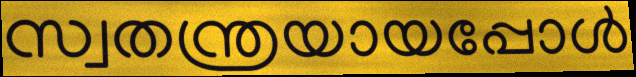
സ്വതന്ത്രയായപ്പോൾ